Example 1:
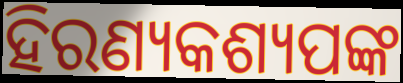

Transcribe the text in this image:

ହିରଣ୍ୟକଶ୍ୟପଙ୍କ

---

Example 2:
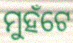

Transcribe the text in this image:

ମୁହଁଟେ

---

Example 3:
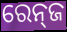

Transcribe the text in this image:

ରେନ୍‍ଜ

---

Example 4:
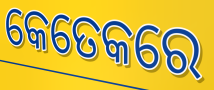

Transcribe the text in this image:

କେତେକରେ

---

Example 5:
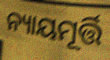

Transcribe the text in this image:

ନ୍ୟାୟମୂର୍ତ୍ତି